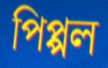
পিপ্পল